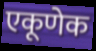
एकूणेक